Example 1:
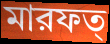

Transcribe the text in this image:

মারফত্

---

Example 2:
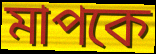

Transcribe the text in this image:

মাপকে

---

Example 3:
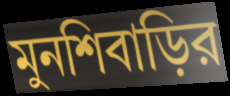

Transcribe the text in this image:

মুনশিবাড়ির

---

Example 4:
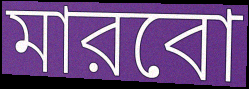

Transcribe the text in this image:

মারবো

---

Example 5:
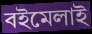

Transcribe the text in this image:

বইমেলাই